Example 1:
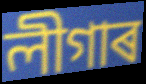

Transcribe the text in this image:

লীগাৰ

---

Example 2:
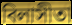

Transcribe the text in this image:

বিলাসীতা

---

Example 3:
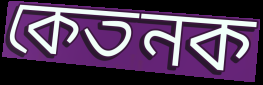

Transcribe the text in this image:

কেতনক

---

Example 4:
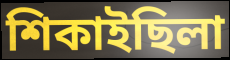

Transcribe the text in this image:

শিকাইছিলা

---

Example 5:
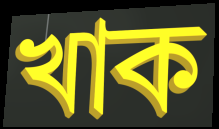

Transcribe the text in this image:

খাক